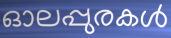
ഓലപ്പുരകൾ